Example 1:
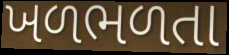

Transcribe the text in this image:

ખળભળતા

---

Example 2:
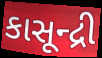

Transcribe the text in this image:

કાસૂન્દ્રી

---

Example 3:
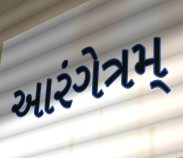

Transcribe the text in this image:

આરંગેત્રમ્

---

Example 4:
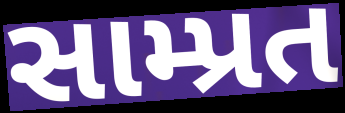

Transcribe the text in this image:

સામ્પ્રત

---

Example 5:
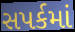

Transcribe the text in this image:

સપર્કમાં